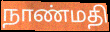
நாண்மதி